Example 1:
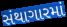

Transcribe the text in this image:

સંથાગારમાં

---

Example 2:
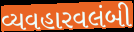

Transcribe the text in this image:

વ્યવહારવલંબી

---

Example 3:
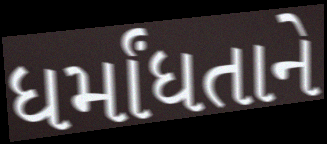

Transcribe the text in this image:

ધર્માંધતાને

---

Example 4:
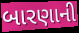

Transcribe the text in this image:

બારણાની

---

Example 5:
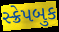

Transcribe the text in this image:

સ્ક્રેપબુક